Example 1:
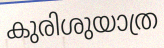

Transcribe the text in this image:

കുരിശുയാത്ര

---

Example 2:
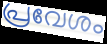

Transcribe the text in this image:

പ്രവേശം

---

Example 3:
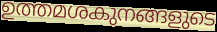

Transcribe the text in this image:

ഉത്തമശകുനങ്ങളുടെ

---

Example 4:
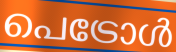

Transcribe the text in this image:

പെട്രോൾ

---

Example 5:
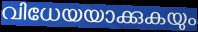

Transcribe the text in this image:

വിധേയയാക്കുകയും